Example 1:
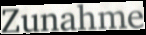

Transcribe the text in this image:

Zunahme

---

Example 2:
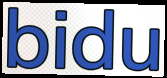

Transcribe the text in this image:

bidu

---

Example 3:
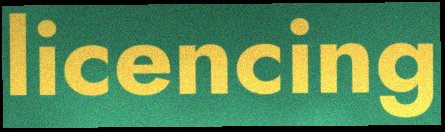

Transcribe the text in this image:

licencing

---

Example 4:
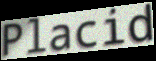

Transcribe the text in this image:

Placid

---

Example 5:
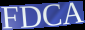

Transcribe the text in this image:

FDCA